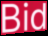
Bid